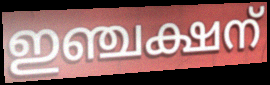
ഇഞ്ചക്ഷന്